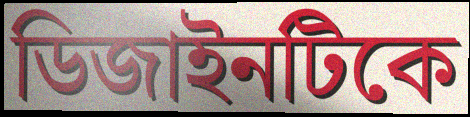
ডিজাইনটিকে